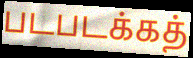
படபடக்கத்